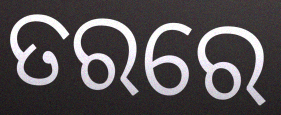
ତରରେ